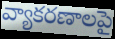
వ్యాకరణాలపై